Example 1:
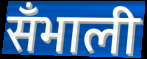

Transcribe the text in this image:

सँभाली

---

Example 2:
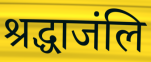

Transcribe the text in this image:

श्रद्धाजंलि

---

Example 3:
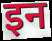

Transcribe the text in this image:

इन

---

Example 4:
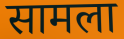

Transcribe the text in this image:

सामला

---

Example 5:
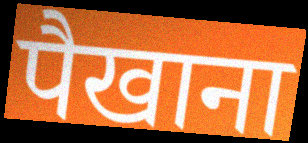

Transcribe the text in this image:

पैखाना